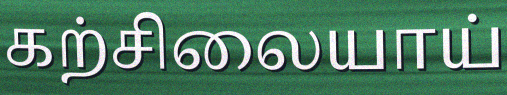
கற்சிலையாய்